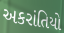
અકરાંતિયો